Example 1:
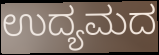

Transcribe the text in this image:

ಉದ್ಯಮದ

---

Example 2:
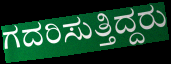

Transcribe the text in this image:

ಗದರಿಸುತ್ತಿದ್ದರು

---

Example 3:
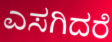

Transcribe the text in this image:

ಎಸಗಿದರೆ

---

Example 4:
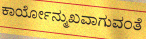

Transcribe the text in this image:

ಕಾರ್ಯೋನ್ಮುಖವಾಗುವಂತೆ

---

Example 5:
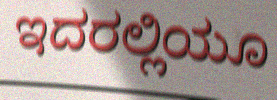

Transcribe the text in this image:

ಇದರಲ್ಲಿಯೂ